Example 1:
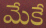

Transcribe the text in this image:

మేకే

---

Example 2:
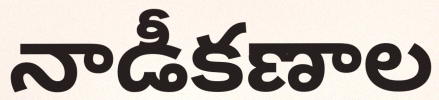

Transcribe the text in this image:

నాడీకణాల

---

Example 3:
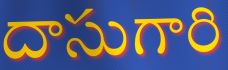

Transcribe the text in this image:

దాసుగారి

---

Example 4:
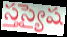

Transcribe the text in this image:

స్తస్యైష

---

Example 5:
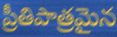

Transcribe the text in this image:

ప్రీతిపాత్రమైన